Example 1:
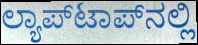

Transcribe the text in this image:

ಲ್ಯಾಪ್‌ಟಾಪ್‌ನಲ್ಲಿ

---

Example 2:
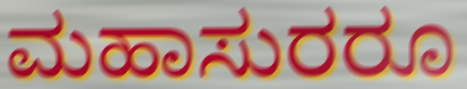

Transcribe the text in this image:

ಮಹಾಸುರರೂ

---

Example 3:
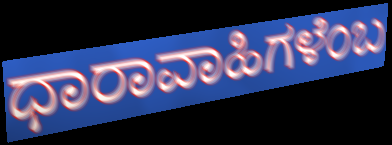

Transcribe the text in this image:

ಧಾರಾವಾಹಿಗಳೆಂಬ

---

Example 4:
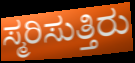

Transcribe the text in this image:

ಸ್ಮರಿಸುತ್ತಿರು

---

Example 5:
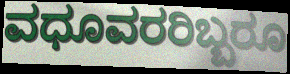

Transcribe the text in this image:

ವಧೂವರರಿಬ್ಬರೂ